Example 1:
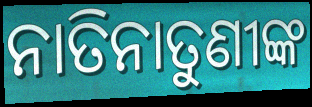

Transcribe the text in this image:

ନାତିନାତୁଣୀଙ୍କ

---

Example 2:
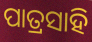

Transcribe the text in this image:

ପାତ୍ରସାହି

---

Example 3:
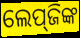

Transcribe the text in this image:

ଲେପ୍‌ଜିଙ୍କ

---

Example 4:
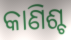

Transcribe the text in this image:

କାଣିଶ୍ଚ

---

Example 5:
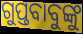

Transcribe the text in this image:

ଗୁପ୍ତବାବୁଙ୍କୁ